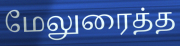
மேலுரைத்த